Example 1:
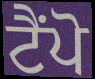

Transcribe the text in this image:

ਟੈਂਪੋ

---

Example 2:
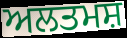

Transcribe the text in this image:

ਅਲਤਮਸ਼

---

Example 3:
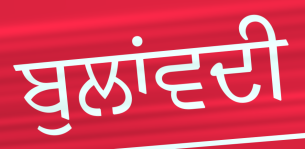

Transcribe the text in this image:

ਬੁਲਾਂਵਦੀ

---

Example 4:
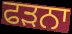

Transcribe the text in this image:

ਫੜਨਾ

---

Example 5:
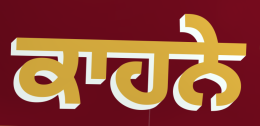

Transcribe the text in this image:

ਕਾਹਨੇ